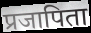
प्रजापिता